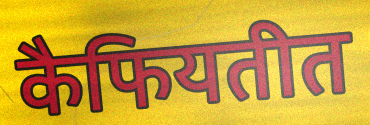
कैफियतीत